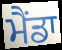
ਮੈਂਡਾ